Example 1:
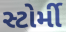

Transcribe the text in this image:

સ્ટોર્મી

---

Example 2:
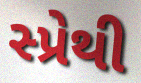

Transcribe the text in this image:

સ્પ્રેથી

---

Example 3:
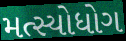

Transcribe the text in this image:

મત્સ્યોધોગ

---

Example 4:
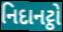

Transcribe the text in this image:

નિદાનટ્ઠો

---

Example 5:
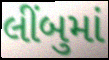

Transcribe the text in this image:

લીંબુમાં